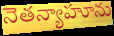
నెతన్యాహూను